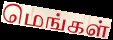
மெங்கள்